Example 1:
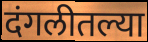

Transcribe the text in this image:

दंगलीतल्या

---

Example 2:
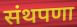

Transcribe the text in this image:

संथपणा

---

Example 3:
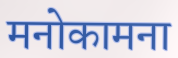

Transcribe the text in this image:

मनोकामना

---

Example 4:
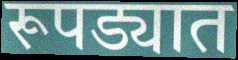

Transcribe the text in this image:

रूपड्यात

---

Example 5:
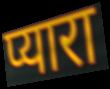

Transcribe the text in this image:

प्यारा